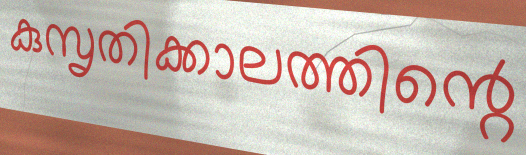
കുസൃതിക്കാലത്തിന്റെ